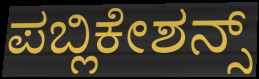
ಪಬ್ಲಿಕೇಶನ್ಸ್